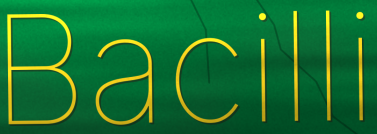
Bacilli